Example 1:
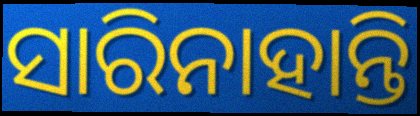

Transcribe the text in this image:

ସାରିନାହାନ୍ତି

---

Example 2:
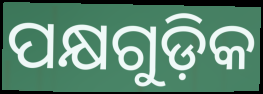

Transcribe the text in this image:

ପକ୍ଷଗୁଡ଼ିକ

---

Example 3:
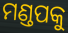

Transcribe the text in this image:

ମଣ୍ଡପକୁ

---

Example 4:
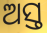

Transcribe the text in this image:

ଅସ୍ତ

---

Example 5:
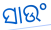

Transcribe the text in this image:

ସାଉଂ